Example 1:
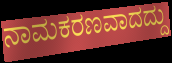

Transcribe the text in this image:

ನಾಮಕರಣವಾದದ್ದು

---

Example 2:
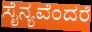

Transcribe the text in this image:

ಸೈನ್ಯವೆಂದರೆ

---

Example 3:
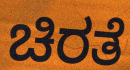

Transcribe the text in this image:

ಚಿರತೆ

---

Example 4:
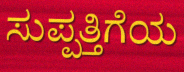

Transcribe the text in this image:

ಸುಪ್ಪತ್ತಿಗೆಯ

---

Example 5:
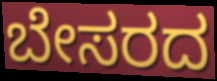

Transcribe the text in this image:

ಬೇಸರದ